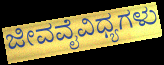
ಜೀವವೈವಿಧ್ಯಗಳು